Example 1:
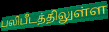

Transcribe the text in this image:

பலிபீடத்திலுள்ள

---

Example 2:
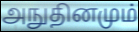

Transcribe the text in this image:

அநுதினமும்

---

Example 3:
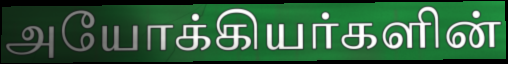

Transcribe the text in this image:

அயோக்கியர்களின்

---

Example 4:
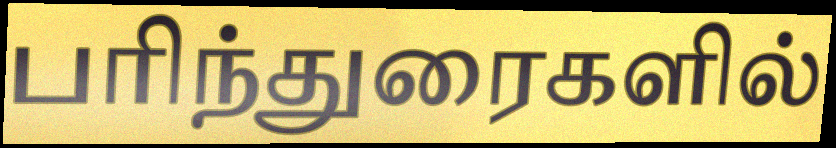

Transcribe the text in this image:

பரிந்துரைகளில்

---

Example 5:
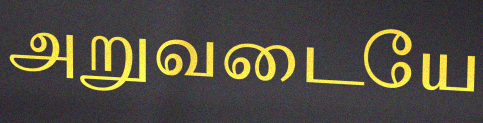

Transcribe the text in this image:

அறுவடையே